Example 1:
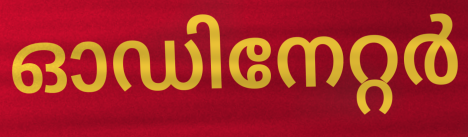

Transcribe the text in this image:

ഓഡിനേറ്റർ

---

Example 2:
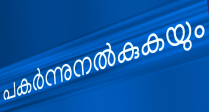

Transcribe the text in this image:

പകർന്നുനൽകുകയും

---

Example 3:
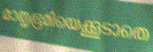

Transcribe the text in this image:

മാതൃഭൂമിയെക്കൂടാതെ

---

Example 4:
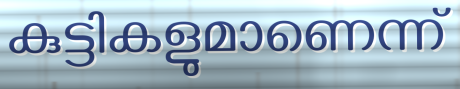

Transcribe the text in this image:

കുട്ടികളുമാണെന്ന്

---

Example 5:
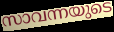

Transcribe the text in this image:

സാവന്നയുടെ